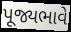
પૂજ્યભાવે